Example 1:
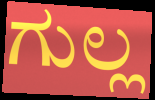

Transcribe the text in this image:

ಗುಲ್ಲ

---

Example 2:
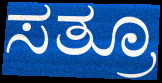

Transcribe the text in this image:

ಸತ್ರೂ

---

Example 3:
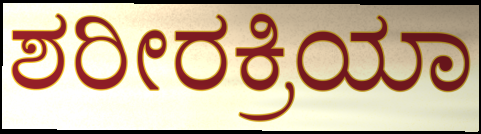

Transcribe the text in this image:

ಶರೀರಕ್ರಿಯಾ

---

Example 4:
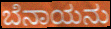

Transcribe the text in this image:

ಬೆನಾಯನು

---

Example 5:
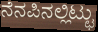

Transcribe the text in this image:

ನೆನಪಿನಲ್ಲಿಟ್ಟು